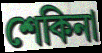
শেকিনা